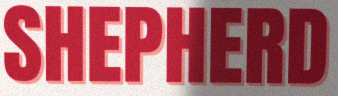
SHEPHERD